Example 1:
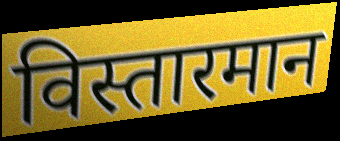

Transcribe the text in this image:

विस्तारमान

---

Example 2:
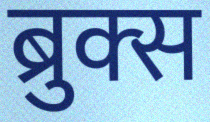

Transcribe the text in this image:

ब्रुक्‍स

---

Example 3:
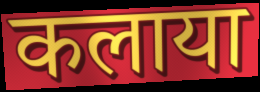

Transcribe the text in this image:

कलाया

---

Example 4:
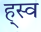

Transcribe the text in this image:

ह्स्व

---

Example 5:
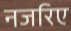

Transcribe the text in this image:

नजरिए